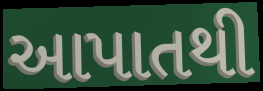
આપાતથી